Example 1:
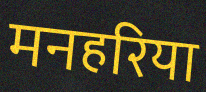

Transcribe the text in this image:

मनहरिया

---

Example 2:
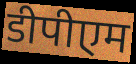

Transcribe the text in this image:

डीपीएम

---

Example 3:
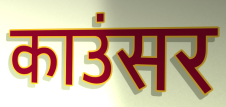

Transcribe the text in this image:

काउंसर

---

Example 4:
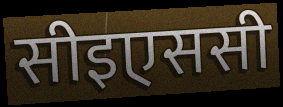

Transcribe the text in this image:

सीइएससी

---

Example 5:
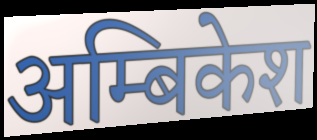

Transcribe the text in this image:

अम्बिकेश